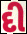
દી